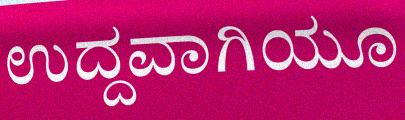
ಉದ್ದವಾಗಿಯೂ